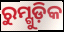
ରୁମ୍ଗୁଡ଼ିକ